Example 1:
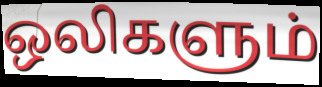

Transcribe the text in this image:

ஒலிகளும்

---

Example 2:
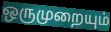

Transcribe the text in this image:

ஒருமுறையும்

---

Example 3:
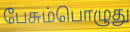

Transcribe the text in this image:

பேசும்பொழுது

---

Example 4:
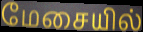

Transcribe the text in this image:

மேசையில்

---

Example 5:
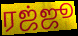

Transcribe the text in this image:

ரஜ்ஜூ